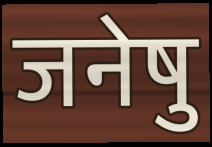
जनेषु